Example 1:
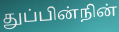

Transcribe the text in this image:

துப்பின்நின்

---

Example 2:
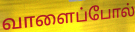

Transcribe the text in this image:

வாளைப்போல்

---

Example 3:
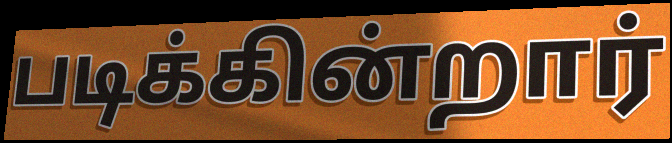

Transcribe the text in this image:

படிக்கின்றார்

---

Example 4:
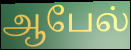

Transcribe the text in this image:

ஆபேல்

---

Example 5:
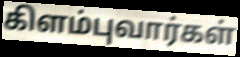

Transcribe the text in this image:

கிளம்புவார்கள்